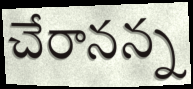
చేరానన్న